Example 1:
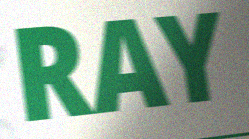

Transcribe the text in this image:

RAY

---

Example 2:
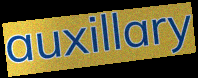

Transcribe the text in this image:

auxillary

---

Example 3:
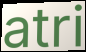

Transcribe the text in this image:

atri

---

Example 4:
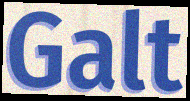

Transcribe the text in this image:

Galt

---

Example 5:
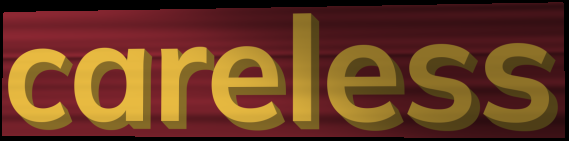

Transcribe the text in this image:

careless